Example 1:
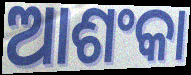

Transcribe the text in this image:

ଆଶଂକା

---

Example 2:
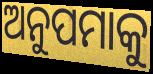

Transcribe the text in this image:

ଅନୁପମାକୁ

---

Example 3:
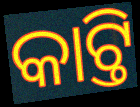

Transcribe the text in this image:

କାଟ୍ତି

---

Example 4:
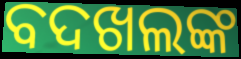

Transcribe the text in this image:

ବଦଖଲଙ୍କ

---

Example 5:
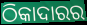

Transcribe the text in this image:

ଠିକାଦାରର